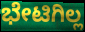
ಭೇಟಿಗಿಲ್ಲ